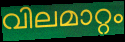
വിലമാറ്റം